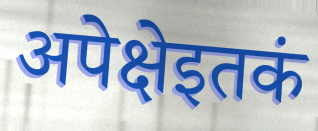
अपेक्षेइतकं